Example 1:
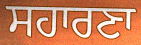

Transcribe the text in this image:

ਸਹਾਰਣਾ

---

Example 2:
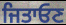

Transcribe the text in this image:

ਜਿਤਾਓਣ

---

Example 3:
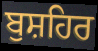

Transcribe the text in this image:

ਬੁਸ਼ਹਿਰ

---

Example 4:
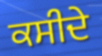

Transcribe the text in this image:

ਕਸੀਦੇ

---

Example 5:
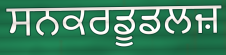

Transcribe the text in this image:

ਸਨਕਰਡੂਡਲਜ਼